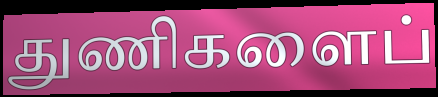
துணிகளைப்